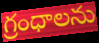
గ్రంధాలను